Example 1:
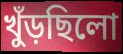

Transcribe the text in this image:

খুঁড়ছিলো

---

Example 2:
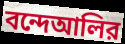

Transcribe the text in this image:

বন্দেআলির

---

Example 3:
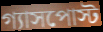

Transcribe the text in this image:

গ্যাসপোস্ট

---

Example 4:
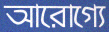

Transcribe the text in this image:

আরোগ্যে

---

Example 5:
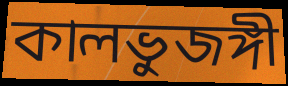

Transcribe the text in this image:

কালভুজঙ্গী